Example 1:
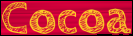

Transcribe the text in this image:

Cocoa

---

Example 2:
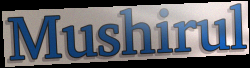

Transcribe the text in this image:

Mushirul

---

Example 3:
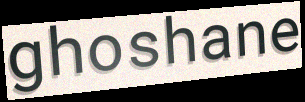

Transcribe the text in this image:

ghoshane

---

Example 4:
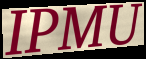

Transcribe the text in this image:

IPMU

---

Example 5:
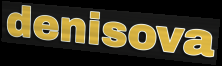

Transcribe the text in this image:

denisova